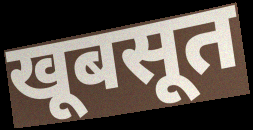
खूबसूत